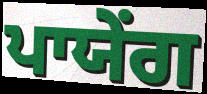
ਪਾਯੇਂਗ